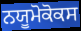
ਨਯੂਮੋਕੋਕਸ